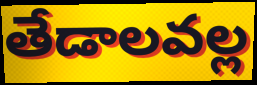
తేడాలవల్ల